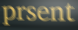
prsent